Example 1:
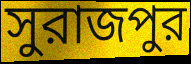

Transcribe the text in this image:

সুরাজপুর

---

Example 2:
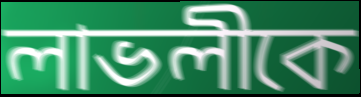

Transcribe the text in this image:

লাভলীকে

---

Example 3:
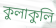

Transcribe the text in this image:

কুলাকুলি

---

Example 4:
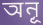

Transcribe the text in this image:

অনূ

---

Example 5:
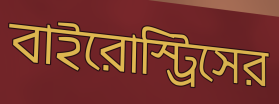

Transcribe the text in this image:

বাইরোস্ট্রিসের